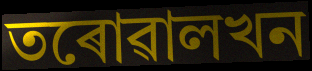
তৰোৱালখন